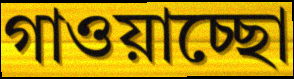
গাওয়াচ্ছো